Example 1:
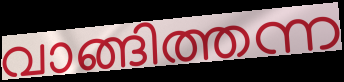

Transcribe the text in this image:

വാങ്ങിത്തന്ന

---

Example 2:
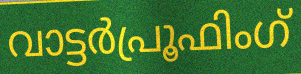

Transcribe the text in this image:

വാട്ടർപ്രൂഫിംഗ്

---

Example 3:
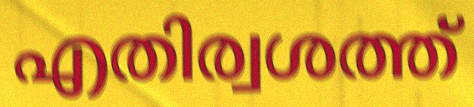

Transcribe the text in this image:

എതിര്വശത്ത്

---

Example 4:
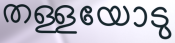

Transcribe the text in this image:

തള്ളയോടു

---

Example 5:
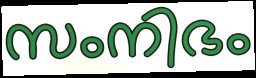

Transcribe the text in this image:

സംനിഭം